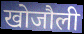
खोजौली